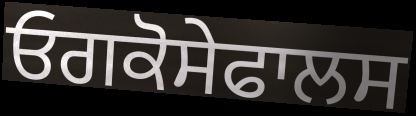
ਓਗਕੋਸੇਫਾਲਸ